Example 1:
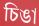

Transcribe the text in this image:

চিঙা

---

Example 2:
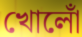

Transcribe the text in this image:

খোলোঁ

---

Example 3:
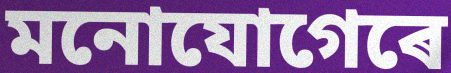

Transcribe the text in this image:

মনোযোগেৰে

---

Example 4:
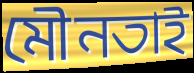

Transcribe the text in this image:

মৌনতাই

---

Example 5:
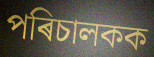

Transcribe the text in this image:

পৰিচালকক